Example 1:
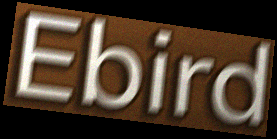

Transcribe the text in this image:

Ebird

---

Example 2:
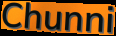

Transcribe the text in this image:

Chunni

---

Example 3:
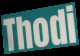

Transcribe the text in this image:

Thodi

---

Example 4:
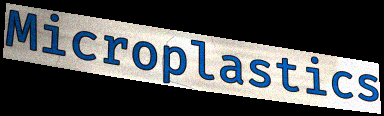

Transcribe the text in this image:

Microplastics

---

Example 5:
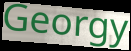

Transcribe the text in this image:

Georgy